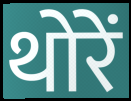
थोरें